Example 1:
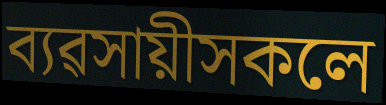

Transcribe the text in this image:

ব্যৱসায়ীসকলে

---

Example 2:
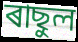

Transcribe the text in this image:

ৰাছুল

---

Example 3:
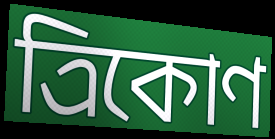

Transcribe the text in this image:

ত্ৰিকোণ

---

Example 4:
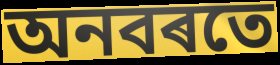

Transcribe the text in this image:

অনবৰতে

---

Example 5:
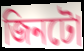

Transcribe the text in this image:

জিনটো